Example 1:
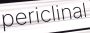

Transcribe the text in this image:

periclinal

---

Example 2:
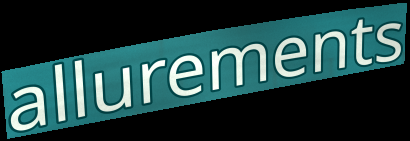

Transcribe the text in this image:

allurements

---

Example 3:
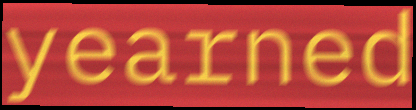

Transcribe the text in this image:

yearned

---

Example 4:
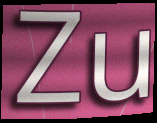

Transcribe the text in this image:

Zu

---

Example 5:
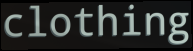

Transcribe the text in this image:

clothing